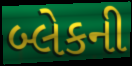
બ્લેકની